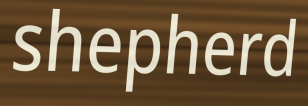
shepherd